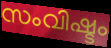
സംവിഷ്ടം